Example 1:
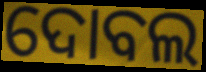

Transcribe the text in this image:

ଦୋବଲ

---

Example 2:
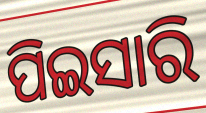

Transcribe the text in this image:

ପିଇସାରି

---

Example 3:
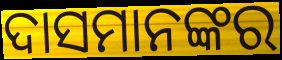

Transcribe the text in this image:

ଦାସମାନଙ୍କର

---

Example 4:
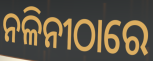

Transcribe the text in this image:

ନଳିନୀଠାରେ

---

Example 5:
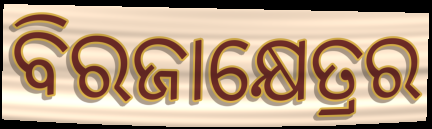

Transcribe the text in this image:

ବିରଜାକ୍ଷେତ୍ରର